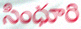
సింధూరి